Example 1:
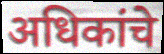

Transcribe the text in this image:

अधिकांचे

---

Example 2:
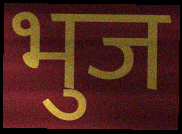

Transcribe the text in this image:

भुज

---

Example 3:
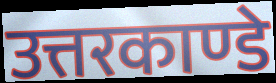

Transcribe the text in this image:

उत्तरकाण्डे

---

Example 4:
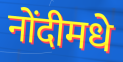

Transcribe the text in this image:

नोंदीमधे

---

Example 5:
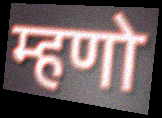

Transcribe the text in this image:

म्हणो